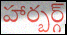
హార్బర్గ్